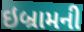
ઇબ્રામની